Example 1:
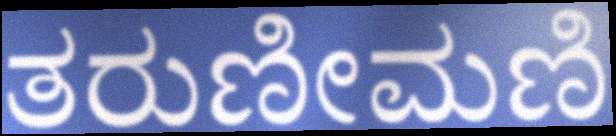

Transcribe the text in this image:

ತರುಣೀಮಣಿ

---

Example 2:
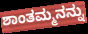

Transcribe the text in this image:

ಶಾಂತಮ್ಮನನ್ನು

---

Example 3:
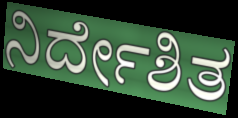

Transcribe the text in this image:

ನಿರ್ದೇಶಿತ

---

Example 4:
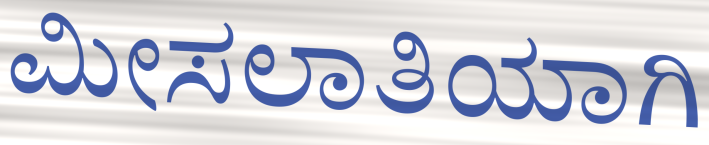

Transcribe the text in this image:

ಮೀಸಲಾತಿಯಾಗಿ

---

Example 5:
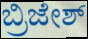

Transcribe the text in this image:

ಬ್ರಿಜೇಶ್